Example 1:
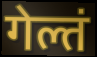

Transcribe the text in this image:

गेल्तं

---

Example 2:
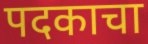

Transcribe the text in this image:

पदकाचा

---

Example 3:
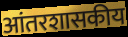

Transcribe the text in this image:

आंतरशासकीय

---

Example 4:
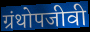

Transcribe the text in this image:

ग्रंथोपजीवी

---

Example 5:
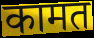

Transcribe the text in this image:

कामत